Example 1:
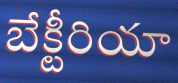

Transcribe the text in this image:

బేక్టీరియా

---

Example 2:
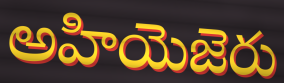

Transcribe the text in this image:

అహియెజెరు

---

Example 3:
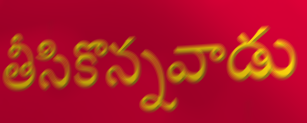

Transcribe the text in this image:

తీసికొన్నవాడు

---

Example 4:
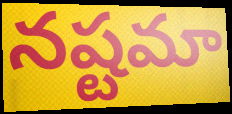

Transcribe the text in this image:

నష్టమా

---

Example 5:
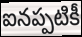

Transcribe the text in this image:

ఐనప్పటికీ